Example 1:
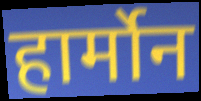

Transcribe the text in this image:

हार्मोन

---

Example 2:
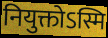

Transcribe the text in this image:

नियुक्तोऽस्मि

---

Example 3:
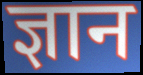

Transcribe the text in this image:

ज्ञान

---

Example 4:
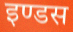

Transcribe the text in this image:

इण्डस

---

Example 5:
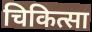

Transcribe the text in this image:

चिकित्सा